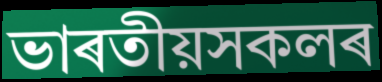
ভাৰতীয়সকলৰ